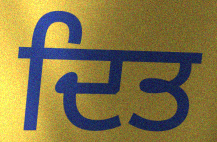
ਦਿਤ